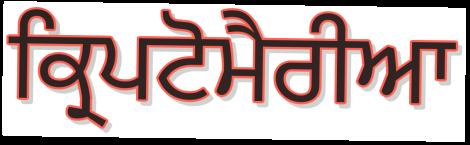
ਕ੍ਰਿਪਟੋਮੈਰੀਆ